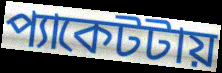
প্যাকেটটায়